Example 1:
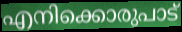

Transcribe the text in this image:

എനിക്കൊരുപാട്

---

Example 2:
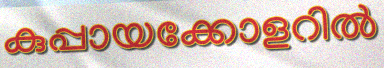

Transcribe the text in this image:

കുപ്പായക്കോളറിൽ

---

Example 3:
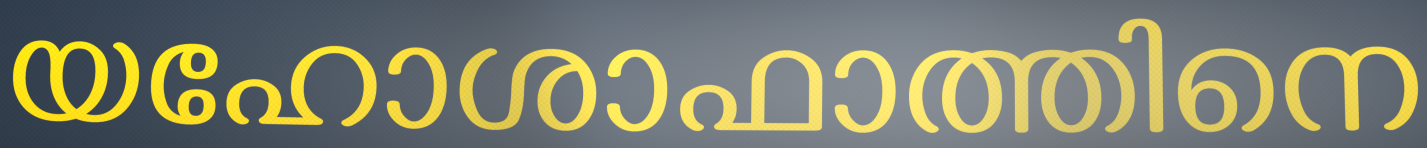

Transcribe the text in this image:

യഹോശാഫാത്തിനെ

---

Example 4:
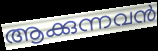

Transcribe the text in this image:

ആക്കുന്നവൻ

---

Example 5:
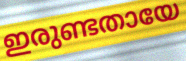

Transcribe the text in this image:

ഇരുണ്ടതായേ